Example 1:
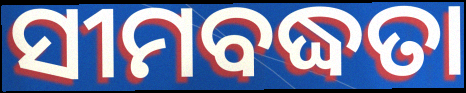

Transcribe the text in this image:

ସୀମବଦ୍ଧତା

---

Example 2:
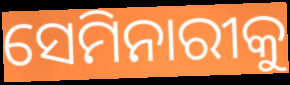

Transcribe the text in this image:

ସେମିନାରୀକୁ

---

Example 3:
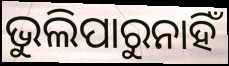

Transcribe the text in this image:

ଭୁଲିପାରୁନାହିଁ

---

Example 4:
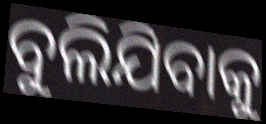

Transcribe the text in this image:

ବୁଲିଯିବାକୁ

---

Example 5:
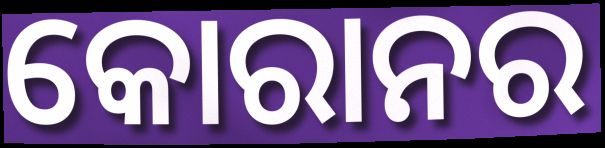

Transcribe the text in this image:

କୋରାନର